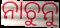
ନାଚୁନୁ